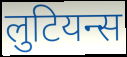
लुटियन्स